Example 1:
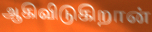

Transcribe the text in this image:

ஆகிவிடுகிறான்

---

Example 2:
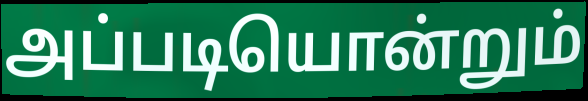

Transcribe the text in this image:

அப்படியொன்றும்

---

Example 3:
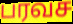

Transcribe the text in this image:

பரவச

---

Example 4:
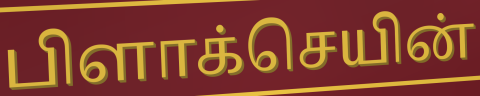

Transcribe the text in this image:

பிளாக்செயின்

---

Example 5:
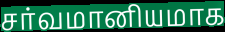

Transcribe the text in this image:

சர்வமானியமாக